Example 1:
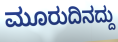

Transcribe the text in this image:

ಮೂರುದಿನದ್ದು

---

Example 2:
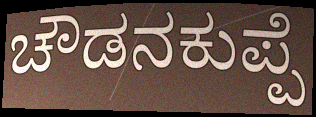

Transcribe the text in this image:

ಚೌಡನಕುಪ್ಪೆ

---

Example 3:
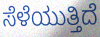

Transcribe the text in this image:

ಸೆಳೆಯುತ್ತಿದೆ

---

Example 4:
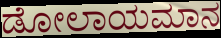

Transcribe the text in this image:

ಡೋಲಾಯಮಾನ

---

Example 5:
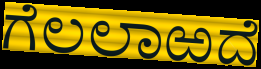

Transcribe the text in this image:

ಗೆಲಲಾಱದೆ